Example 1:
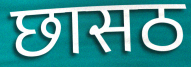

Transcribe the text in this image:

छासठ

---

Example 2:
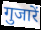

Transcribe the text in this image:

गुजारें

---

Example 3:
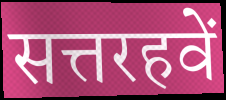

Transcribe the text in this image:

सत्तरहवें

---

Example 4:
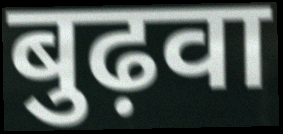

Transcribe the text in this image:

बुढ़वा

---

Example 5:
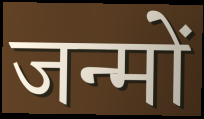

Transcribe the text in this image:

जन्मों